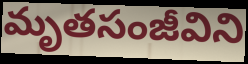
మృతసంజీవిని